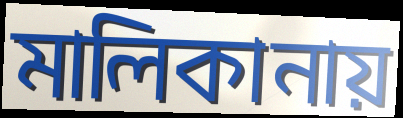
মালিকানায়